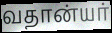
வதான்யர்